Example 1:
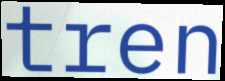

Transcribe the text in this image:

tren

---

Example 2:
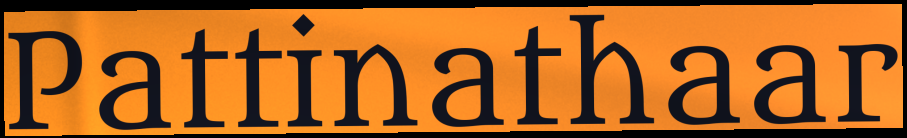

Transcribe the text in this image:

Pattinathaar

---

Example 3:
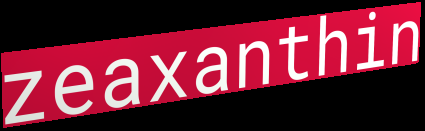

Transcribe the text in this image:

zeaxanthin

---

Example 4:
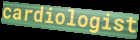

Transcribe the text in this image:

cardiologist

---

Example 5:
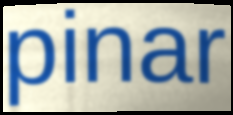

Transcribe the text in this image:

pinar